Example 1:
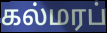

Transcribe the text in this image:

கல்மரப்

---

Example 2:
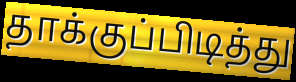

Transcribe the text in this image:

தாக்குப்பிடித்து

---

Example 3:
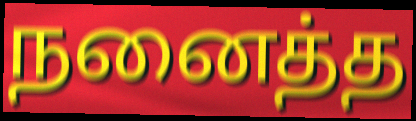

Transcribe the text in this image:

நனைத்த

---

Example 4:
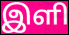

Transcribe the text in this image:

இளி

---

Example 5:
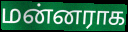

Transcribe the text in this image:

மன்னராக